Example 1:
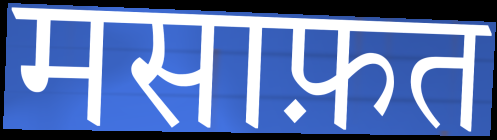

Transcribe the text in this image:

मसाफ़त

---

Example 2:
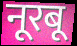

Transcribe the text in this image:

नूरबू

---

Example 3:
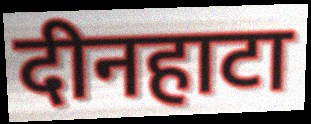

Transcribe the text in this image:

दीनहाटा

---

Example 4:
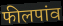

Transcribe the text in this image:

फीलपांव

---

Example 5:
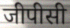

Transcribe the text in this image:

जीपीसी